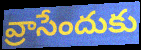
వ్రాసేందుకు